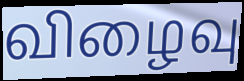
விழைவு